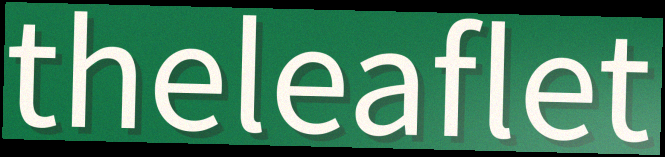
theleaflet